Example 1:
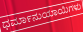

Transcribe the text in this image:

ಧರ್ಮಾನುಯಾಯಿಗಳು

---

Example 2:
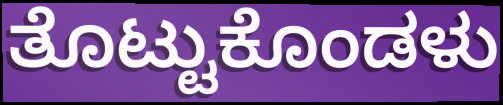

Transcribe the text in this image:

ತೊಟ್ಟುಕೊಂಡಳು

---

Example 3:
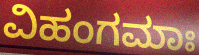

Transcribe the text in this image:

ವಿಹಂಗಮಾಃ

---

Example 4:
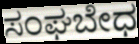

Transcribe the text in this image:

ಸಂಘಬೇಧ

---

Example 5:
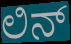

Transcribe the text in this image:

ಲಿನ್